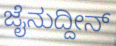
ಜೈನುದ್ದೀನ್